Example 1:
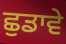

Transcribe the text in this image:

ਛੁਡਾਵੇ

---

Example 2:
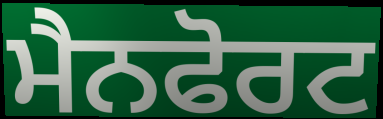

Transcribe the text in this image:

ਮੈਨਫੋਰਟ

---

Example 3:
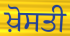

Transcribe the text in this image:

ਖ਼ੋਸਤੀ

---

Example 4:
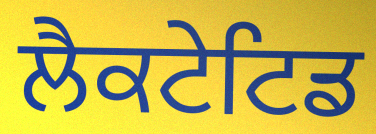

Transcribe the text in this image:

ਲੈਕਟੇਟਿਡ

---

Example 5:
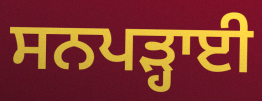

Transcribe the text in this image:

ਸਨਪੜ੍ਹਾਈ